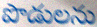
పొడులను